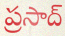
ప్రసాద్